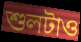
শুলটাও